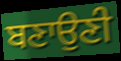
ਬਣਾਉਣੀ